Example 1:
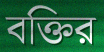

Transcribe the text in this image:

বক্তির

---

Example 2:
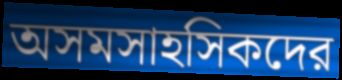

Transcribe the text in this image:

অসমসাহসিকদের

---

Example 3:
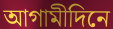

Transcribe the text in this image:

আগামীদিনে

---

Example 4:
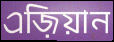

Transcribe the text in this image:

এজ়িয়ান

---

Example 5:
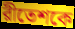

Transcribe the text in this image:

রীতেশকে